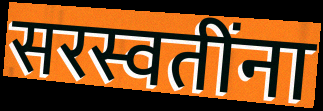
सरस्वतींना